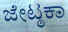
ಜೇಟ್ಠಕಾ